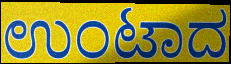
ಉಂಟಾದ